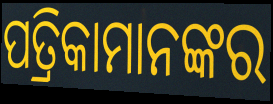
ପତ୍ରିକାମାନଙ୍କର